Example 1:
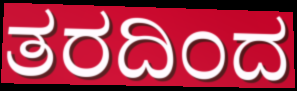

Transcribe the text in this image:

ತರದಿಂದ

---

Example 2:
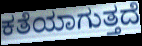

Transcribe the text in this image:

ಕತೆಯಾಗುತ್ತದೆ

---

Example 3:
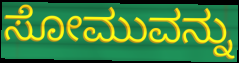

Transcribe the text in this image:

ಸೋಮುವನ್ನು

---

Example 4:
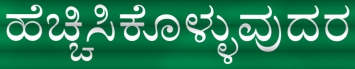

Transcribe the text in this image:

ಹೆಚ್ಚಿಸಿಕೊಳ್ಳುವುದರ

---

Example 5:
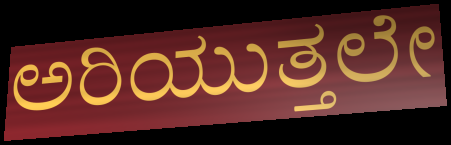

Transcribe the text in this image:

ಅರಿಯುತ್ತಲೇ